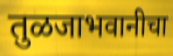
तुळजाभवानीचा